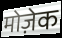
मोज़ेक